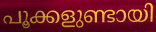
പൂക്കളുണ്ടായി